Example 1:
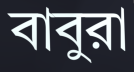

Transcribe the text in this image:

বাবুরা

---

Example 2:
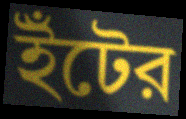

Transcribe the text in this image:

ইঁটের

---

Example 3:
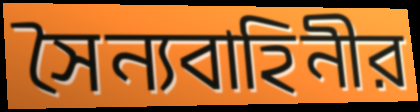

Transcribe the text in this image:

সৈন্যবাহিনীর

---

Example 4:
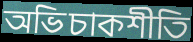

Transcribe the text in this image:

অভিচাকশীতি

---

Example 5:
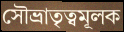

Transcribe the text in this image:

সৌভ্রাতৃত্বমূলক